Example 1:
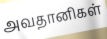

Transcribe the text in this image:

அவதானிகள்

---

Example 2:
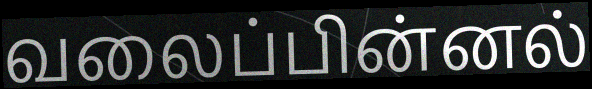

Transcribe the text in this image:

வலைப்பின்னல்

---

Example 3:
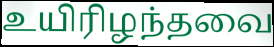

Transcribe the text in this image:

உயிரிழந்தவை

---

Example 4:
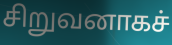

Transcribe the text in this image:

சிறுவனாகச்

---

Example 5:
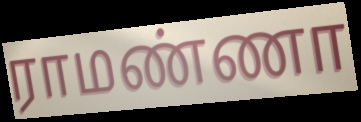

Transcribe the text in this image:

ராமண்ணா